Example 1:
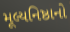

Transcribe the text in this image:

મૂલ્યનિષ્ઠાનો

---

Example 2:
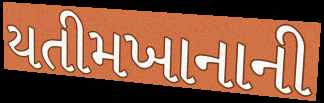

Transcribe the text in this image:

યતીમખાનાની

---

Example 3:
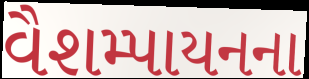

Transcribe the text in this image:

વૈશમ્પાયનના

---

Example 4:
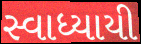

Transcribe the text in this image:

સ્વાધ્યાયી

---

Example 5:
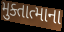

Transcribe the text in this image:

મુક્તાત્માના